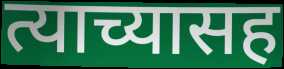
त्याच्यासह